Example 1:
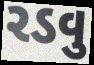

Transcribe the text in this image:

રડવુ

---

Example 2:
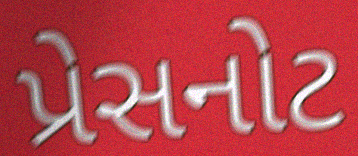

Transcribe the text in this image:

પ્રેસનોટ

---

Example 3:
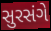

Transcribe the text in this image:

સુરસંગે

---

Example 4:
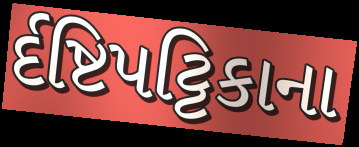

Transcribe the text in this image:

ર્દષ્ટિપટ્ટિકાના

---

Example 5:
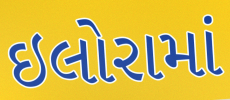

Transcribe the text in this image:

ઇલોરામાં